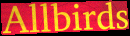
Allbirds